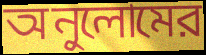
অনুলোমের